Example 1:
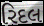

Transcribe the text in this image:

રિદલ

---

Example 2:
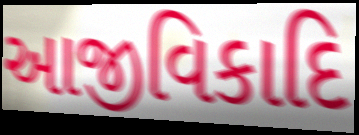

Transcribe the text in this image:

આજીવિકાદિ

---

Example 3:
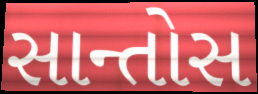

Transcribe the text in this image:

સાન્તોસ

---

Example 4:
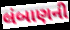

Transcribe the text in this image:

લંબાણની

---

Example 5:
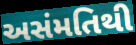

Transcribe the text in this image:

અસંમતિથી